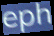
eph